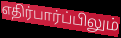
எதிர்பார்ப்பிலும்